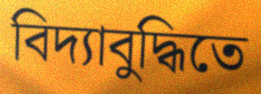
বিদ্যাবুদ্ধিতে